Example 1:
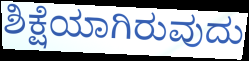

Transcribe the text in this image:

ಶಿಕ್ಷೆಯಾಗಿರುವುದು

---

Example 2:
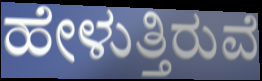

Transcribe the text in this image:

ಹೇಳುತ್ತಿರುವೆ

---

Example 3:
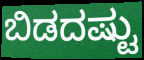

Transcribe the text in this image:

ಬಿಡದಷ್ಟು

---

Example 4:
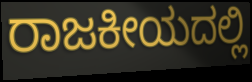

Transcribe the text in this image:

ರಾಜಕೀಯದಲ್ಲಿ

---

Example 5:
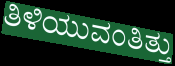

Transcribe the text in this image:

ತಿಳಿಯುವಂತಿತ್ತು